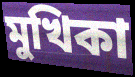
মুখিকা